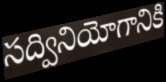
సద్వినియోగానికి